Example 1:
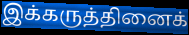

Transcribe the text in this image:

இக்கருத்தினைக்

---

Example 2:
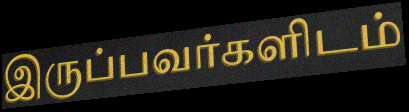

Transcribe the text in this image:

இருப்பவர்களிடம்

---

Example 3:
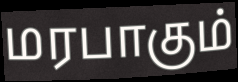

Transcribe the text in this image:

மரபாகும்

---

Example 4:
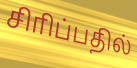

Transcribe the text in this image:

சிரிப்பதில்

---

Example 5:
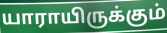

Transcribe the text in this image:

யாராயிருக்கும்